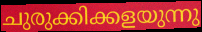
ചുരുക്കിക്കളയുന്നു